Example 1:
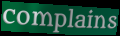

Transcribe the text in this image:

complains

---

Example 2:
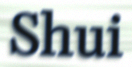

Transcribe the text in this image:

Shui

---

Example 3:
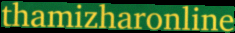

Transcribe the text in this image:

thamizharonline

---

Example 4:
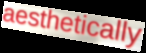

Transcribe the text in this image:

aesthetically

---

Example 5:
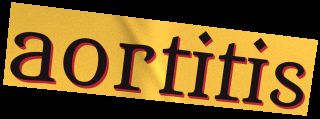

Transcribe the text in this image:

aortitis